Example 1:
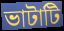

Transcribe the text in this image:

ভাটাটি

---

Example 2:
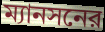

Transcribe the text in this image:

ম্যানসনের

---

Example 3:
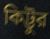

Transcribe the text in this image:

কিট্টুর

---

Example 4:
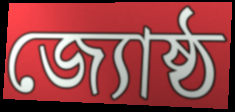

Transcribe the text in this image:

জ্যোষ্ঠ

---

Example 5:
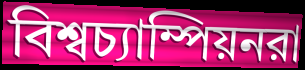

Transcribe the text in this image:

বিশ্বচ্যাম্পিয়নরা